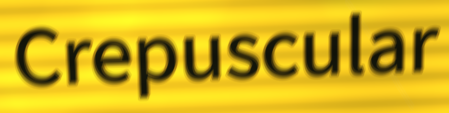
Crepuscular